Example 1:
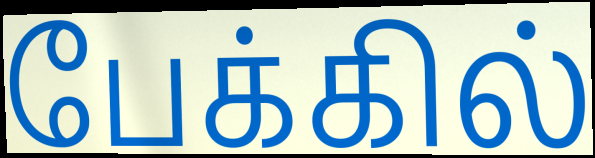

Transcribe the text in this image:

பேக்கில்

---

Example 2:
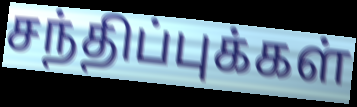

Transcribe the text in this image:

சந்திப்புக்கள்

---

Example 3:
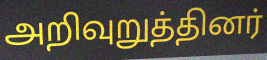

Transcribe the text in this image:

அறிவுறுத்தினர்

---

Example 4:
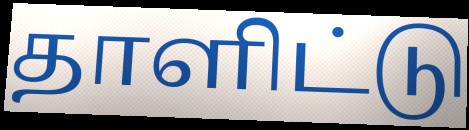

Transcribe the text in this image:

தாளிட்டு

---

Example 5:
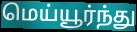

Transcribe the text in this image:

மெய்யூர்ந்து